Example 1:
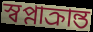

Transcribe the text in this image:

স্বপ্নাক্রান্ত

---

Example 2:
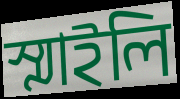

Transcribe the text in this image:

স্মাইলি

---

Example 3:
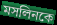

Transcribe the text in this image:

মসলিনকে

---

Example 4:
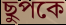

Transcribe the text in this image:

ছুপকে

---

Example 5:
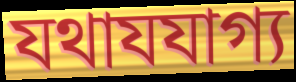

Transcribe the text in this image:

যথাযযাগ্য